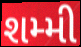
શમ્મી